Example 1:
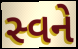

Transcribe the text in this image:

સ્વને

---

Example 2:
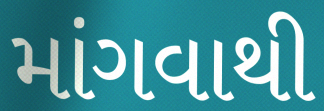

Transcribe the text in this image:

માંગવાથી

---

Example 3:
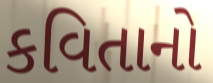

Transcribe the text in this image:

કવિતાનો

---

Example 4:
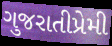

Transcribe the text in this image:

ગુજરાતીપ્રેમી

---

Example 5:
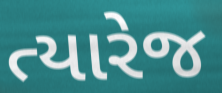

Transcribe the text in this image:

ત્યારેજ